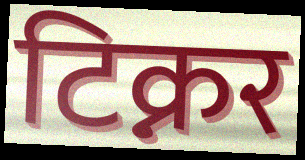
टिक्नर